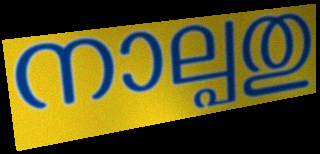
നാല്പതു